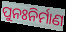
ପୁନଃନିର୍ମାଣ